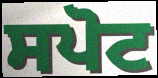
ਸਪੋਟ